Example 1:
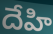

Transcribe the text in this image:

దేహి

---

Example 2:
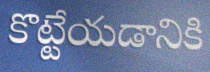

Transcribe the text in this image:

కొట్టేయడానికి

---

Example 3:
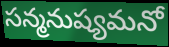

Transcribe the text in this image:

సన్మనుష్యమనో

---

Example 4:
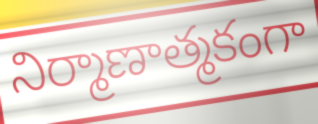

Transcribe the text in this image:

నిర్మాణాత్మకంగా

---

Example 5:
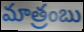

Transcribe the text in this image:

మాత్రంబు